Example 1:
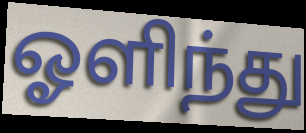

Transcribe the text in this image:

ஓளிந்து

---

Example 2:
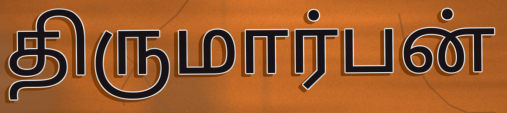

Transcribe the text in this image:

திருமார்பன்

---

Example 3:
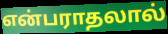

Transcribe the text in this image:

என்பராதலால்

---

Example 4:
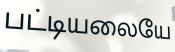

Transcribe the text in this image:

பட்டியலையே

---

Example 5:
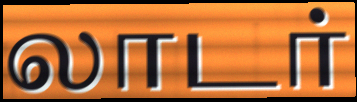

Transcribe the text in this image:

லாடர்